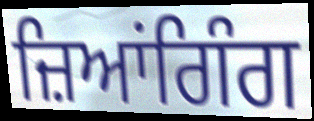
ਜ਼ਿਆਂਗਿੰਗ